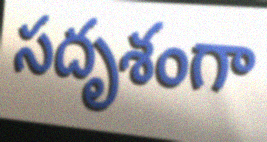
సదృశంగా